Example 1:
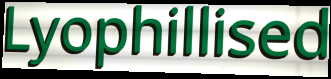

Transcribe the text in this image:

Lyophillised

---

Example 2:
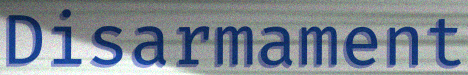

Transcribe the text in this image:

Disarmament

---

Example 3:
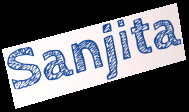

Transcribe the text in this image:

Sanjita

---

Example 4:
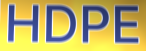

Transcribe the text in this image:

HDPE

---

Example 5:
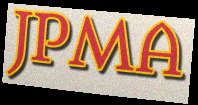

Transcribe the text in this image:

JPMA